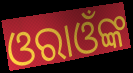
ଓରାଓଁଙ୍କ